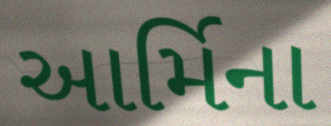
આર્મિના